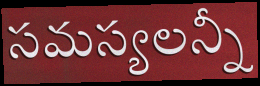
సమస్యలన్నీ